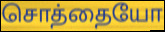
சொத்தையோ